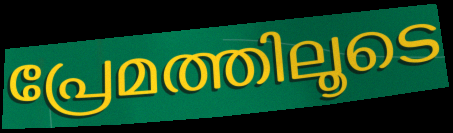
പ്രേമത്തിലൂടെ